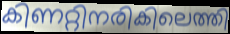
കിണറ്റിനരികിലെത്തി